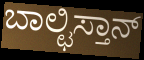
ಬಾಲ್ಟಿಸ್ತಾನ್